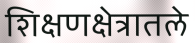
शिक्षणक्षेत्रातले